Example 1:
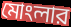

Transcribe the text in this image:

মোংলার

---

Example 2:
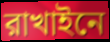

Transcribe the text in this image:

রাখাইনে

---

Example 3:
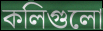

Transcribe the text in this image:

কলিগুলো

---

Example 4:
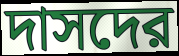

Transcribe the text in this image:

দাসদের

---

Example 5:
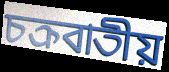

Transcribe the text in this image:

চক্রবাতীয়